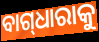
ବାଗ୍‌ଧାରାକୁ